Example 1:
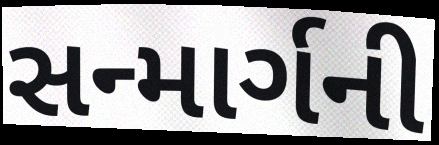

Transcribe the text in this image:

સન્માર્ગની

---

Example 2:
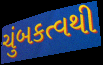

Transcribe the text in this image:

ચુંબકત્વથી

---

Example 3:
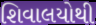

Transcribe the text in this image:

શિવાલયોથી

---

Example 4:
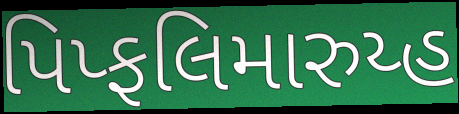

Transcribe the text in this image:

પિપ્ફલિમારુય્હ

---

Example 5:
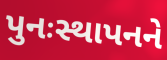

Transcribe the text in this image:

પુનઃસ્થાપનને